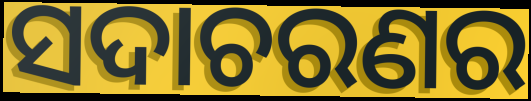
ସଦାଚରଣର